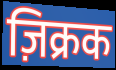
ज़िक्रक